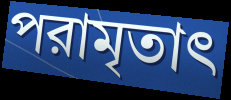
পরামৃতাৎ